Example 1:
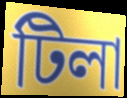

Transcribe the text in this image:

টিলা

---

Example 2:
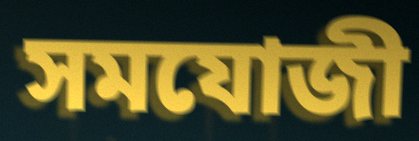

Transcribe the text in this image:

সমযোজী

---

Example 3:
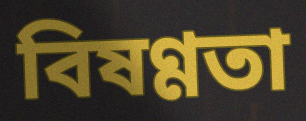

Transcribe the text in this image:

বিষণ্ণতা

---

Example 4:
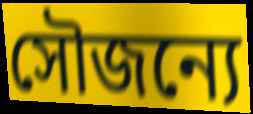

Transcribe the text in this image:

সৌজন্যে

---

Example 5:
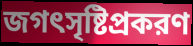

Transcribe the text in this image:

জগৎসৃষ্টিপ্রকরণ